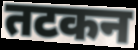
तटकन